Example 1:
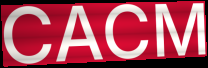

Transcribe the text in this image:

CACM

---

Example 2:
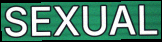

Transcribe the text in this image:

SEXUAL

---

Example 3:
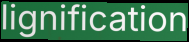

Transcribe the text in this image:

lignification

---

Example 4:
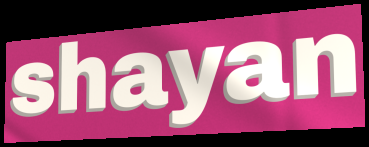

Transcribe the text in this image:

shayan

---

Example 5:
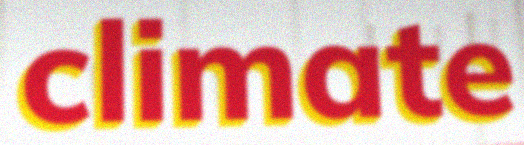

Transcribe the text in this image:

climate